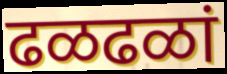
ढळढळां